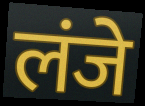
लंजे